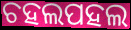
ଚହଲପହଲ